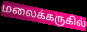
மலைக்கருகில்